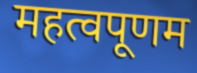
महत्वपूणम